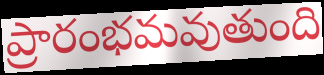
ప్రారంభమవుతుంది